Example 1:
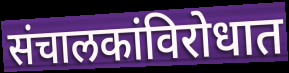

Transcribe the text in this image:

संचालकांविरोधात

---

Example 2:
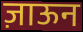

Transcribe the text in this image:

ज़ाऊन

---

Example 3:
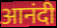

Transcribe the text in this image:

आनंदी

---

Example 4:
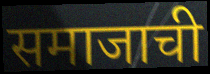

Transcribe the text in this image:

समाजाची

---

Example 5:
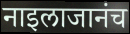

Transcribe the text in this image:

नाइलाजानंच